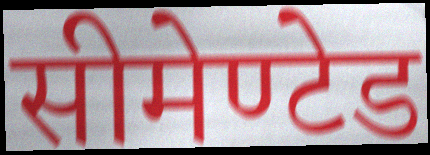
सीमेण्टेड